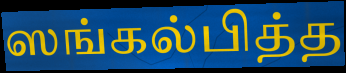
ஸங்கல்பித்த